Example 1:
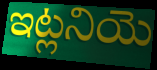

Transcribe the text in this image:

ఇట్లనియె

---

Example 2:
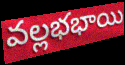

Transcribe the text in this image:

వల్లభభాయి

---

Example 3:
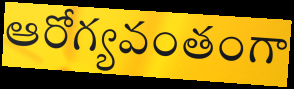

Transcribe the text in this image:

ఆరోగ్యవంతంగా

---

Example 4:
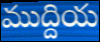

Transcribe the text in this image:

ముద్దియ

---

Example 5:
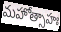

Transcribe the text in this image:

మహోత్సాహః